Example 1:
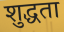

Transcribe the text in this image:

शुद्धता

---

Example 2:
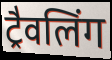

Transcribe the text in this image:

ट्रैवलिंग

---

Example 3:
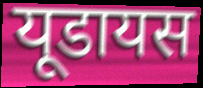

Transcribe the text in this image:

यूडायस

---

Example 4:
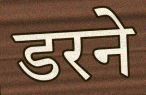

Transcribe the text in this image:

डरने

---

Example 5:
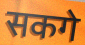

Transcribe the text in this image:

सकगे